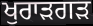
ਖੁਰਾੜਗੜ